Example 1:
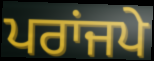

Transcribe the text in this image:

ਪਰਾਂਜਪੇ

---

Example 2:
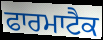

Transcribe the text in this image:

ਫਾਰਮਾਟੈਕ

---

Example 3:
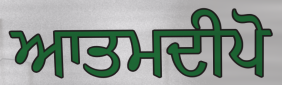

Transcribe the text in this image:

ਆਤਮਦੀਪੋ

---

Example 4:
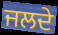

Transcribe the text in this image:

ਜਲਦੇ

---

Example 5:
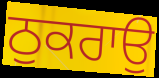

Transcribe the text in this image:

ਠੁਕਰਾਉ